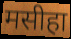
मसीहा